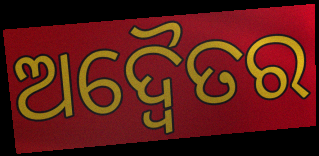
ଅଦ୍ଵୈତର